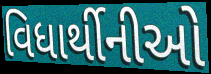
વિધાર્થીનીઓ